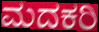
ಮದಕರಿ